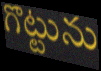
గొట్టును